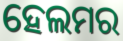
ହେଲମର